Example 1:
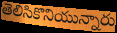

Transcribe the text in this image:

తెలిసికొనియున్నారు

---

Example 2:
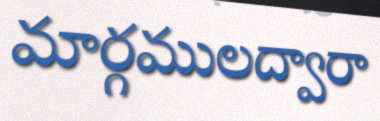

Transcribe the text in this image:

మార్గములద్వారా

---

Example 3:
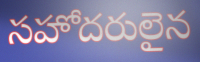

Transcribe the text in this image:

సహోదరులైన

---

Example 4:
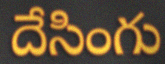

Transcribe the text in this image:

దేసింగు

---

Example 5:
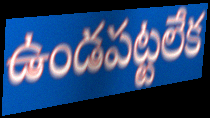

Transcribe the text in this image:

ఉండపట్టలేక